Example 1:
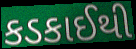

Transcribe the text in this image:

કડકાઈથી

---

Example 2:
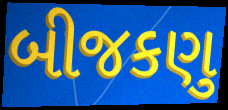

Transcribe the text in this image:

બીજકણુ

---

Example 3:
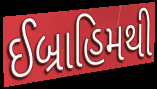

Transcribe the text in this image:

ઈબ્રાહિમથી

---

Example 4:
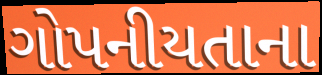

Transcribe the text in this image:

ગોપનીયતાના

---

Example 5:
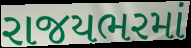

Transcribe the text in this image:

રાજયભરમાં